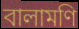
বালামণি